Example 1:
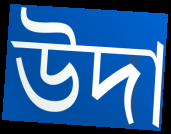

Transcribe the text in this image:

উদা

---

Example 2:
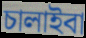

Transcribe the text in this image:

চালাইবা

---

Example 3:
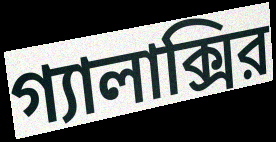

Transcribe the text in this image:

গ্যালাক্সির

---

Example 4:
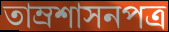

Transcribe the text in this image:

তাম্রশাসনপত্র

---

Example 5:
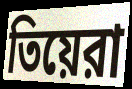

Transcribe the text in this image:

তিয়েরা